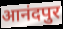
आनंदपुर